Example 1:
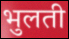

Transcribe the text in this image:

भुलती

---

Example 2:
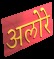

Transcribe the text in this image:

अलोरे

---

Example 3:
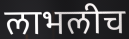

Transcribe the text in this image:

लाभलीच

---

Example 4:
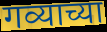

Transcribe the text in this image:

गव्याच्या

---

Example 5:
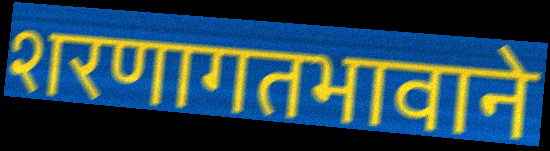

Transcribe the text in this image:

शरणागतभावाने